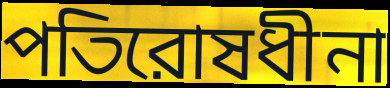
পতিরোষধীনা